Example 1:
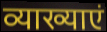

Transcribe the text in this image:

व्याख्याएं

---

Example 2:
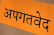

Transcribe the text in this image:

अपगतवेद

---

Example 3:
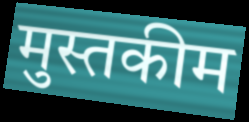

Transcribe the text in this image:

मुस्तकीम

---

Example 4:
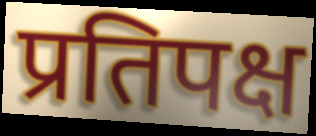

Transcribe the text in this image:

प्रतिपक्ष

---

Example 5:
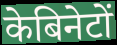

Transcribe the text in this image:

केबिनेटों